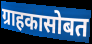
ग्राहकासोबत